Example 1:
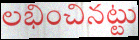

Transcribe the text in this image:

లభించినట్టు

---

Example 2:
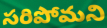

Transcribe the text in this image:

సరిపోమని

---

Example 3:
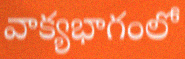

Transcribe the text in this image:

వాక్యభాగంలో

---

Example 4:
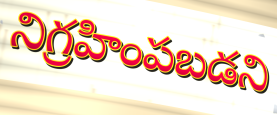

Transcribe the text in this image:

నిగ్రహింపబడని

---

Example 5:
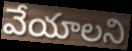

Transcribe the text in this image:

వేయాలని